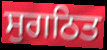
ਸੁਗਠਿਤ